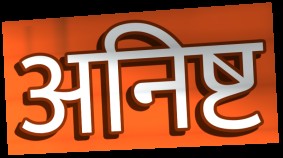
अनिष्ट